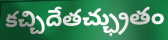
కచ్చిదేతచ్ఛ్రుతం